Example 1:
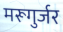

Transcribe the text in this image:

मरूगुर्जर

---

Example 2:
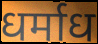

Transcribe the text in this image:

धर्माध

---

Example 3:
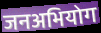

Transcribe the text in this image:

जनअभियोग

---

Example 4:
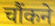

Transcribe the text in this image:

चौंकने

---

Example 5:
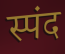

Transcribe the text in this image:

स्पंद